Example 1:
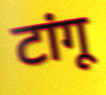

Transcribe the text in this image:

टांगू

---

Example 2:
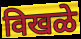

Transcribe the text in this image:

विखळे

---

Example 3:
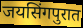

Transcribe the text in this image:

जयसिंगपुरात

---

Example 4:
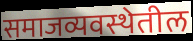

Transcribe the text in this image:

समाजव्यवस्थेतील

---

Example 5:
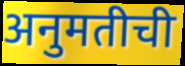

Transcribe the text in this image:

अनुमतीची